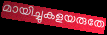
മായിച്ചുകളയരുതേ